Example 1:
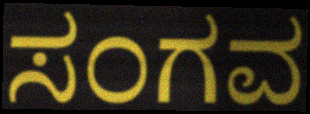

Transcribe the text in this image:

ಸಂಗವ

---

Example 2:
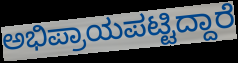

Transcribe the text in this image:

ಅಭಿಪ್ರಾಯಪಟ್ಟಿದ್ದಾರೆ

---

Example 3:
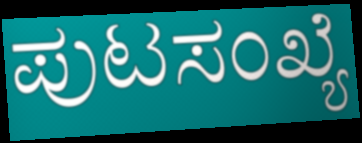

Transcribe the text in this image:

ಪುಟಸಂಖ್ಯೆ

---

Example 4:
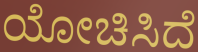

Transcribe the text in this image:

ಯೋಚಿಸಿದೆ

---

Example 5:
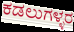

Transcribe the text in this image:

ಕಡಲುಗಳ್ಳರ